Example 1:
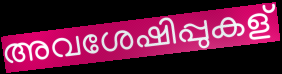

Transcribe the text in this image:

അവശേഷിപ്പുകള്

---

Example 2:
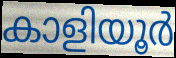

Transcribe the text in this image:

കാളിയൂർ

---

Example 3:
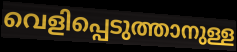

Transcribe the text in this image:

വെളിപ്പെടുത്താനുള്ള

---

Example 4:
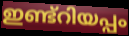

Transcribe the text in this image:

ഇണ്ട്റിയപ്പം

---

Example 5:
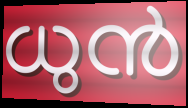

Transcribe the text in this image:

ധുൻ